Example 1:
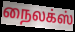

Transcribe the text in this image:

நைலக்ஸ்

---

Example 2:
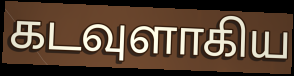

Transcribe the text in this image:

கடவுளாகிய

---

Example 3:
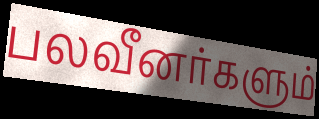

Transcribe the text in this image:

பலவீனர்களும்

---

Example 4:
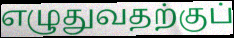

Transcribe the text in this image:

எழுதுவதற்குப்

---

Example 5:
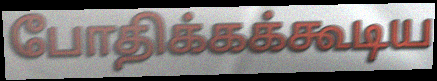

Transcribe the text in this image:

போதிக்கக்கூடிய